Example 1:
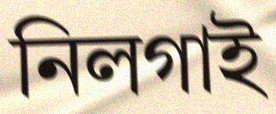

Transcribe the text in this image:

নিলগাই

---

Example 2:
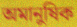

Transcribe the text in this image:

অমানুষিক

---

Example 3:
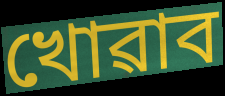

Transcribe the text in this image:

খোৱাব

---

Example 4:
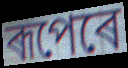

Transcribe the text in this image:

ৰূপেৰে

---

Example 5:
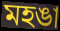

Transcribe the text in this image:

মহঙা